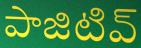
పాజిటివ్